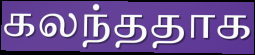
கலந்ததாக